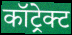
कॉट्रेक्ट